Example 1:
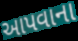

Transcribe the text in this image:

આપવાના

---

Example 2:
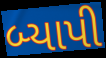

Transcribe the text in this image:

બ્યાપી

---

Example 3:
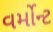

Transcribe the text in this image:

વર્મોન્ટ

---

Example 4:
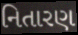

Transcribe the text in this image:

નિતારણ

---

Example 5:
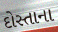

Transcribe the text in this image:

દોસ્તાના